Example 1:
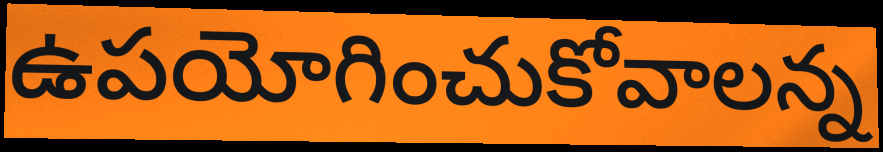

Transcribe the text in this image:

ఉపయోగించుకోవాలన్న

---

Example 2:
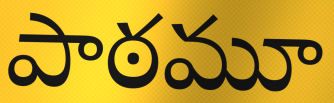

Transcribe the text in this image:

పాఠమూ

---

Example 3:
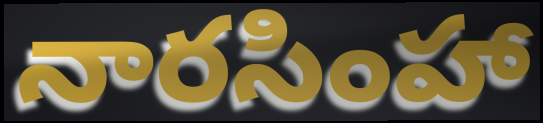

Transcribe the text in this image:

నారసింహా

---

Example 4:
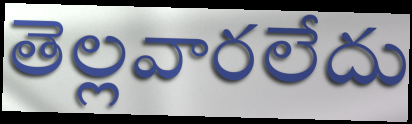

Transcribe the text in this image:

తెల్లవారలేదు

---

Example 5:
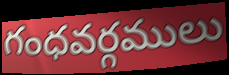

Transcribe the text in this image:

గంధవర్గములు